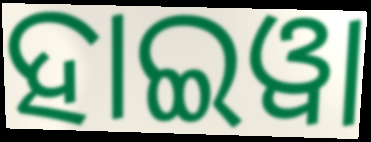
ହାଇୱା